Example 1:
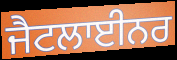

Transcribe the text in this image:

ਜੈਟਲਾਈਨਰ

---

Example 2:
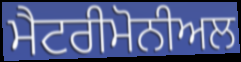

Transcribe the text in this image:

ਮੈਟਰੀਮੋਨੀਅਲ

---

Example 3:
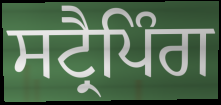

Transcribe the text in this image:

ਸਟ੍ਰੈਪਿੰਗ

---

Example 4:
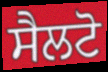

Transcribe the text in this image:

ਸੈਲਟੋ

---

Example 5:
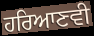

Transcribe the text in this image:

ਹਰਿਆਣਵੀ